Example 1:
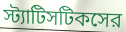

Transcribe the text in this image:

স্ট্যাটিসটিকসের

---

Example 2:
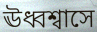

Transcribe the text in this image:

ঊধ্বশ্বাসে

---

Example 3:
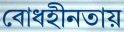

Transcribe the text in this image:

বোধহীনতায়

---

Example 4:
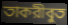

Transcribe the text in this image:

তাকরীবুত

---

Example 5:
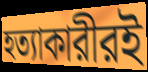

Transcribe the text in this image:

হত্যাকারীরই